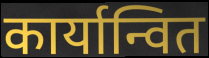
कार्यान्वित